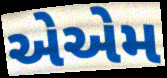
એએમ